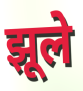
झूले